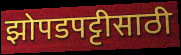
झोपडपट्टीसाठी